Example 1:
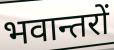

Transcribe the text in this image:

भवान्तरों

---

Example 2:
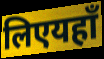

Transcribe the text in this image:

लिएयहाँ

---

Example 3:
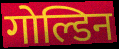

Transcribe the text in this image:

गोल्डिन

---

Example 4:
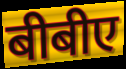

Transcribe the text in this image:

बीबीए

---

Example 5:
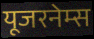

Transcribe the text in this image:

यूजरनेम्स